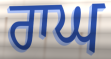
ਰਾਘ